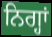
ਨਿਗ੍ਹਾਂ